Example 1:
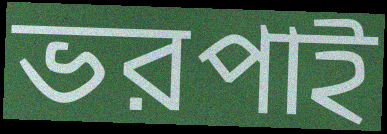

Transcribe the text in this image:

ভরপাই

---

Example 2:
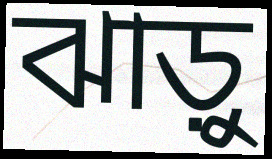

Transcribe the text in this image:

ঝাড়ু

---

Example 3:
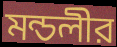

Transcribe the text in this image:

মন্ডলীর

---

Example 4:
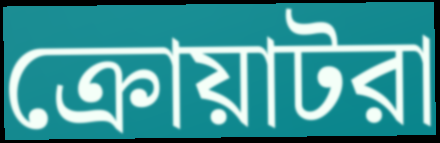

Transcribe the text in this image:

ক্রোয়াটরা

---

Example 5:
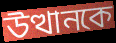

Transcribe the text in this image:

উত্থানকে